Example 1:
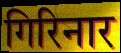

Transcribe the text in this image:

गिरिनार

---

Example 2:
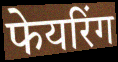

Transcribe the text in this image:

फेयरिंग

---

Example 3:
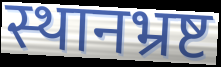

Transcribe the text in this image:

स्थानभ्रष्ट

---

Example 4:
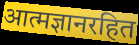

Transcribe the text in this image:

आत्मज्ञानरहित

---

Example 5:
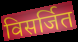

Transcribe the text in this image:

विसर्जित